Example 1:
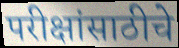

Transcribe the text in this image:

परीक्षांसाठीचे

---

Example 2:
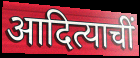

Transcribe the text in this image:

आदित्याचीं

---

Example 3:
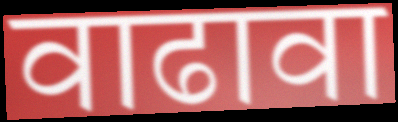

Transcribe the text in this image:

वाढावा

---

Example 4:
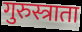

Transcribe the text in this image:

गुरुस्त्राता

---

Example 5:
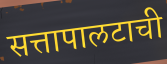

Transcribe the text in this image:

सत्तापालटाची